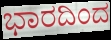
ಭಾರದಿಂದ